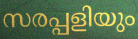
സരപ്പളിയും